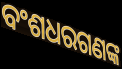
ବଂଶଧରଗଣଙ୍କ